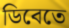
ডিবেতে